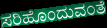
ಸರಿಹೊಂದುವಂತೆ